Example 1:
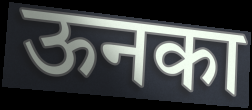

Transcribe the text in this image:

ऊनका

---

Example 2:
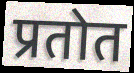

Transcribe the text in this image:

प्रतोत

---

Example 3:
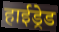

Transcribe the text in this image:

हाईड्रेड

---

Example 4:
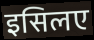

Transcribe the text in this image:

इसिलए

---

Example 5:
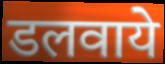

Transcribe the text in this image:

डलवाये